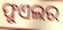
ଫୁଏଲର